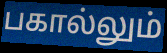
பகால்லும்